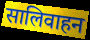
सालिवाहन